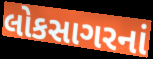
લોકસાગરનાં